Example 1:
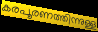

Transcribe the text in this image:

കരപൂരണത്തിന്നുള്ള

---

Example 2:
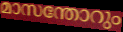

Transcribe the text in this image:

മാസന്തോറും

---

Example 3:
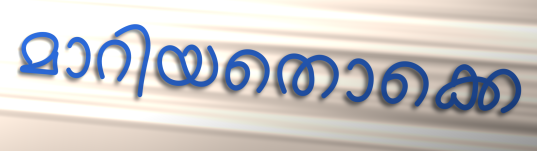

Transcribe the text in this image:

മാറിയതൊക്കെ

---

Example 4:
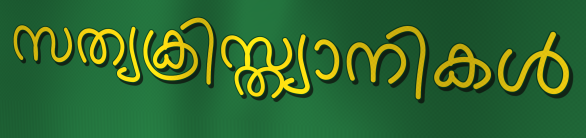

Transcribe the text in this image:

സത്യക്രിസ്ത്യാനികൾ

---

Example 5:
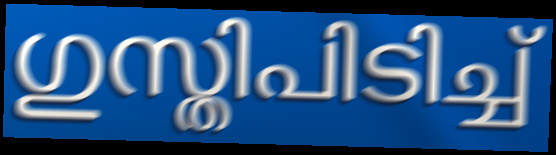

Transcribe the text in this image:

ഗുസ്തിപിടിച്ച്